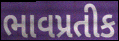
ભાવપ્રતીક